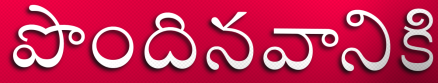
పొందినవానికి